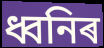
ধ্বনিৰ